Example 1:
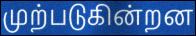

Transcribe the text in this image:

முற்படுகின்றன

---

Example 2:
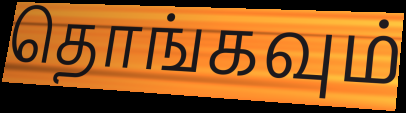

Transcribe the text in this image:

தொங்கவும்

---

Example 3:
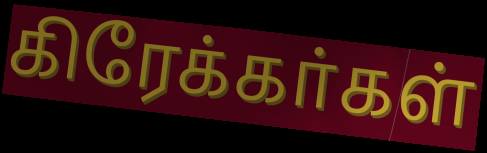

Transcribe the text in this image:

கிரேக்கர்கள்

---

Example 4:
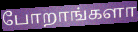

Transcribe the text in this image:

போறாங்களா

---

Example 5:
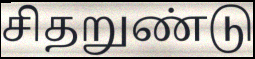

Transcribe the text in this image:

சிதறுண்டு